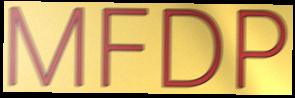
MFDP